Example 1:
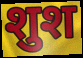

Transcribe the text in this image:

शुश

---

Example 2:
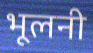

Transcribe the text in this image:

भूलनी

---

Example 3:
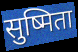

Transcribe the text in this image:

सुष्मिता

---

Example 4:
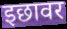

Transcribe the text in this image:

इछावर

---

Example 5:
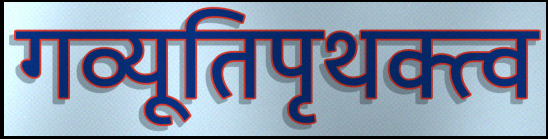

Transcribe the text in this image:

गव्यूतिपृथक्त्व